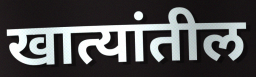
खात्यांतील